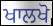
ਖਾਲਖੋ